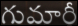
గుమారీ